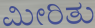
ಮೀರಿತು